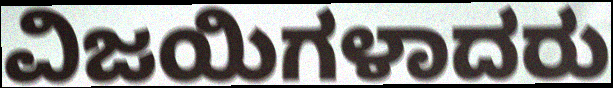
ವಿಜಯಿಗಳಾದರು